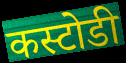
कस्टोडी